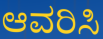
ಆವರಿಸಿ